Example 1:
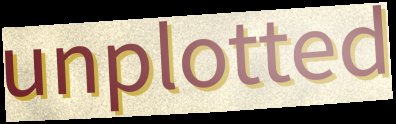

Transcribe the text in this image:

unplotted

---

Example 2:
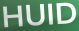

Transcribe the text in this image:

HUID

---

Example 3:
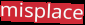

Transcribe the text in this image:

misplace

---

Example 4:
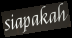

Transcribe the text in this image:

siapakah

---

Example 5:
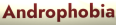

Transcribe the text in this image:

Androphobia